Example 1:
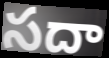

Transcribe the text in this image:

సదా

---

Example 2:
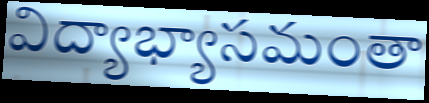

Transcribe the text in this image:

విద్యాభ్యాసమంతా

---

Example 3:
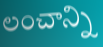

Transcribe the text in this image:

లంచాన్ని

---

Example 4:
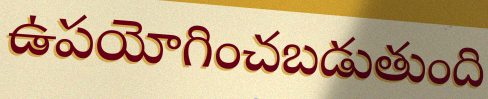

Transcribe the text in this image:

ఉపయోగించబడుతుంది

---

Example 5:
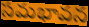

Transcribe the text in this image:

సమభావన